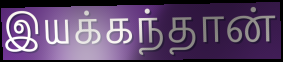
இயக்கந்தான்